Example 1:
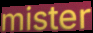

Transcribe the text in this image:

mister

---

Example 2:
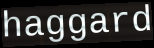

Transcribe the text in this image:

haggard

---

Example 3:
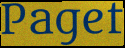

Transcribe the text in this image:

Paget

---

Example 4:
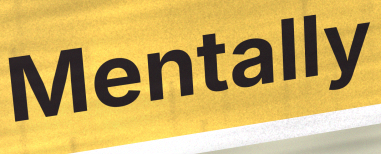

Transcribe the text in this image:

Mentally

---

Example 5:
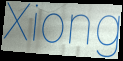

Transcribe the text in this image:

Xiong